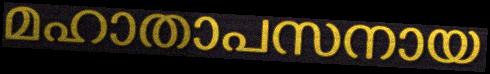
മഹാതാപസനായ